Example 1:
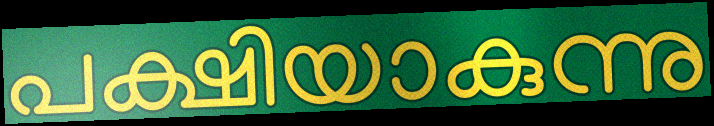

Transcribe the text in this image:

പക്ഷിയാകുന്നു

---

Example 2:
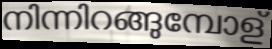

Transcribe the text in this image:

നിന്നിറങ്ങുമ്പോള്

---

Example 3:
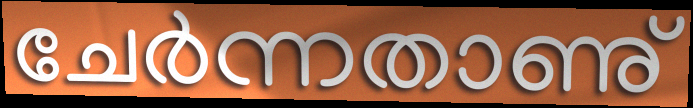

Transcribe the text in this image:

ചേർന്നതാണു്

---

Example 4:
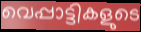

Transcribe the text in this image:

വെപ്പാട്ടികളുടെ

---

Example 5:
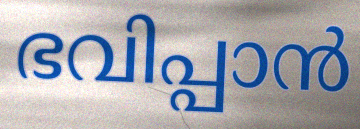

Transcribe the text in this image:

ഭവിപ്പാൻ